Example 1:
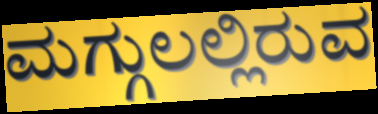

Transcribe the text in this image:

ಮಗ್ಗುಲಲ್ಲಿರುವ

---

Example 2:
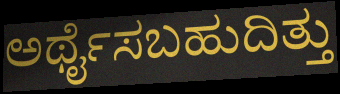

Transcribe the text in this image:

ಅರ್ಥೈಸಬಹುದಿತ್ತು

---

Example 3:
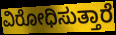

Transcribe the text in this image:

ವಿರೋಧಿಸುತ್ತಾರೆ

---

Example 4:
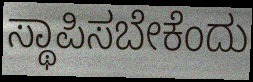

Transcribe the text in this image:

ಸ್ಥಾಪಿಸಬೇಕೆಂದು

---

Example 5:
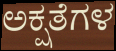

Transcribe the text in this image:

ಅಕ್ಷತೆಗಳ